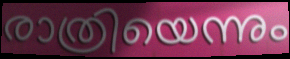
രാത്രിയെന്നും